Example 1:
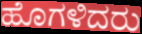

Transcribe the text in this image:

ಹೊಗಳಿದರು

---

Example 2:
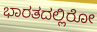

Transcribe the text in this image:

ಭಾರತದಲ್ಲಿರೋ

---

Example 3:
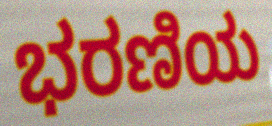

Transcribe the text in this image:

ಭರಣಿಯ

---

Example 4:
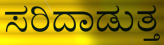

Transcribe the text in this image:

ಸರಿದಾಡುತ್ತ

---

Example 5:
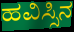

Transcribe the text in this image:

ಹವಿಸ್ಸಿನ